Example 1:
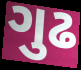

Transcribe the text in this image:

ગુઢ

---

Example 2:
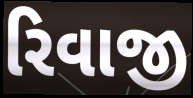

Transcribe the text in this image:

રિવાજી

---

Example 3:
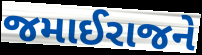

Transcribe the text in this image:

જમાઈરાજને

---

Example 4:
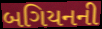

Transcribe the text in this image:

બગિયનની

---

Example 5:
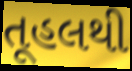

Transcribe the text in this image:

તૂહલથી